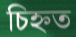
চিহ্নত